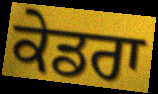
ਕੇਡਰਾ